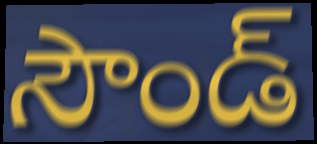
సౌండ్